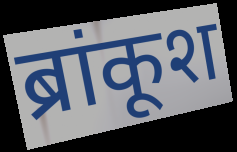
ब्रांकूश